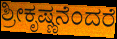
ಶ್ರೀಕೃಷ್ಣನೆಂದರೆ